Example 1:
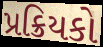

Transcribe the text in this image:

પ્રક્રિયકો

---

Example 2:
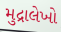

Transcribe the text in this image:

મુદ્રાલેખો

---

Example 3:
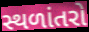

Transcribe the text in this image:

સ્થળાંતરો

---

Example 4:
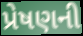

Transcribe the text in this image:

પ્રેષણની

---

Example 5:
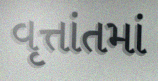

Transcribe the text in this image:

વૃત્તાંતમાં